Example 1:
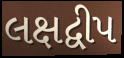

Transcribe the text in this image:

લક્ષદ્વીપ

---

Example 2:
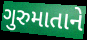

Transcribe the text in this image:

ગુરુમાતાને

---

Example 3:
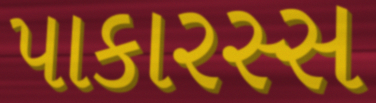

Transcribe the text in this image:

પાકારસ્સ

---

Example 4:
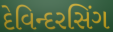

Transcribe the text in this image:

દેવિન્દરસિંગ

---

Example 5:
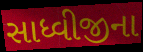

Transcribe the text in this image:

સાધ્વીજીના